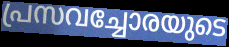
പ്രസവച്ചോരയുടെ